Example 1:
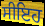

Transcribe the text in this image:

ਸੀਇਹ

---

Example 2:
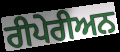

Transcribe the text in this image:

ਰੀਪੇਰੀਅਨ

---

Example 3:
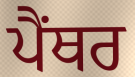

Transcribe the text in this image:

ਪੈੰਥਰ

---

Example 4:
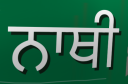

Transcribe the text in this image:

ਨਾਥੀ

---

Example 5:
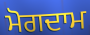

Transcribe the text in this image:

ਮੋਗਦਾਮ